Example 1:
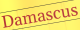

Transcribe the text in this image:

Damascus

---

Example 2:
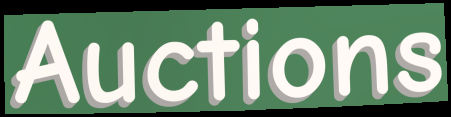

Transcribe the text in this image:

Auctions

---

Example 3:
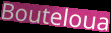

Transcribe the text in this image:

Bouteloua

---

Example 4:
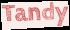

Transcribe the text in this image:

Tandy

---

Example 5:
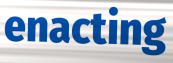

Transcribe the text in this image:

enacting